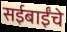
सईबाईंचे